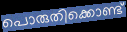
പൊരുതിക്കൊണ്ട്